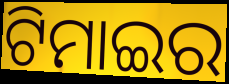
ଟିମାଇର